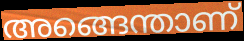
അങ്ങെന്താണ്